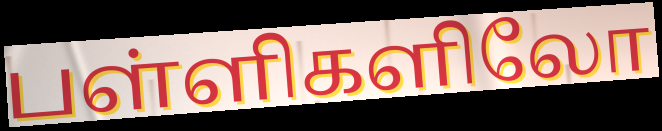
பள்ளிகளிலோ